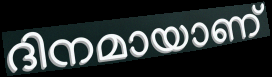
ദിനമായാണ്